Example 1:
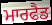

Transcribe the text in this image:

ਮਾਰਫੈਡ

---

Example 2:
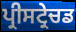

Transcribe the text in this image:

ਪ੍ਰੀਸਟ੍ਰੇਚਡ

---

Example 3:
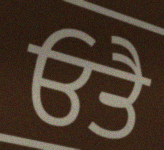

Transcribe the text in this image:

ਓਤੈ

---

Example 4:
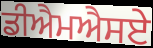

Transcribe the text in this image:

ਡੀਐਮਐਸਏ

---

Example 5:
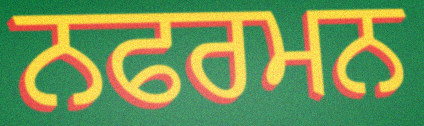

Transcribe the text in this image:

ਨਫਰਮਨ